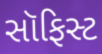
સૉફિસ્ટ